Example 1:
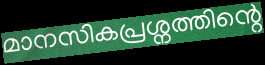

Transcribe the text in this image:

മാനസികപ്രശ്നത്തിന്റെ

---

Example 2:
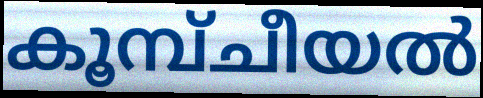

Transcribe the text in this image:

കൂമ്പ്ചീയൽ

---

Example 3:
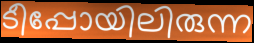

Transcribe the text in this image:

ടീപ്പോയിലിരുന്ന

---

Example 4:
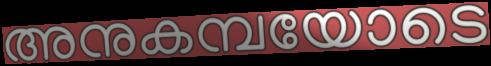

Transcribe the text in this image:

അനുകമ്പയോടെ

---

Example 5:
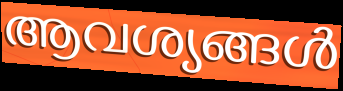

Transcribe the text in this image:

ആവശ്യങ്ങൾ